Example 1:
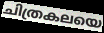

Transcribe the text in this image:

ചിത്രകലയെ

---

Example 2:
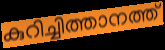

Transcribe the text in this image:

കുറിച്ചിത്താനത്ത്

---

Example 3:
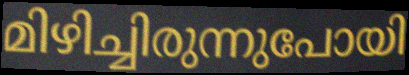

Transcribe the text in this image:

മിഴിച്ചിരുന്നുപോയി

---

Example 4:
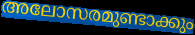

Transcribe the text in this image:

അലോസരമുണ്ടാക്കും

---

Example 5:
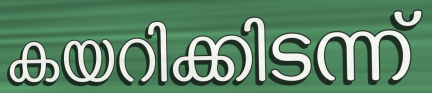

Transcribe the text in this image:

കയറിക്കിടന്ന്